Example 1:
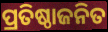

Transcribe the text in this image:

ପ୍ରତିଷ୍ଠାଜନିତ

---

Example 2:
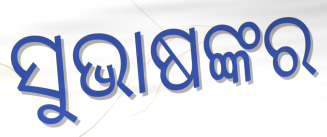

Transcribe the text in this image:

ସୁଭାଷଙ୍କର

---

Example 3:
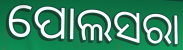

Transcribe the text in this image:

ପୋଲସରା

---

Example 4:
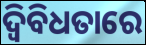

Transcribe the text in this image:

ଦ୍ୱିବିଧତାରେ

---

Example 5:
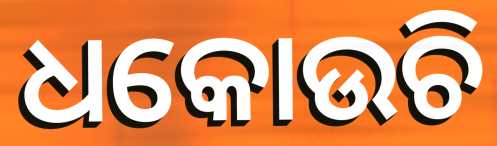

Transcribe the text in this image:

ଧକୋଉଚି